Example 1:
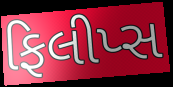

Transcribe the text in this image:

ફિલીપ્સ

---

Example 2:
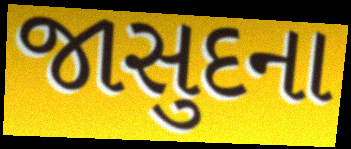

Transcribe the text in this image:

જાસુદના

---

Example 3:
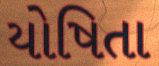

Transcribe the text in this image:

યોષિતા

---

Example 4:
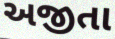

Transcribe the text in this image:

અજીતા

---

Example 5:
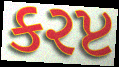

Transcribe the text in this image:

કરપ્ટ